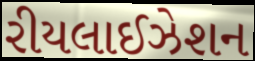
રીયલાઈઝેશન